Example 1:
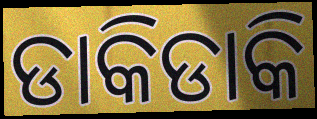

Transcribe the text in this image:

ଡାକିଡାକି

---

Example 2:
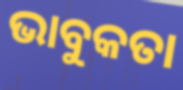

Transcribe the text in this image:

ଭାବୁକତା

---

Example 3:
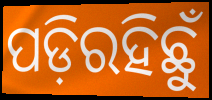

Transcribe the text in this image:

ପଡ଼ିରହିଛୁଁ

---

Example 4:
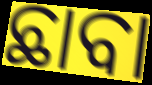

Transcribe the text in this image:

ଛାବା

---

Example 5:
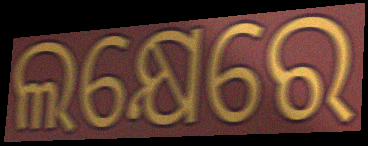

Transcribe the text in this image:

ଲକ୍ଷେରେ